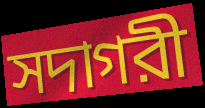
সদাগরী